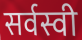
सर्वस्वी